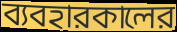
ব্যবহারকালের